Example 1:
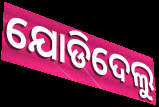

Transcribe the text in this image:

ଯୋଡିଦେଲୁ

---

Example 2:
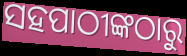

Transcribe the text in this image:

ସହପାଠୀଙ୍କଠାରୁ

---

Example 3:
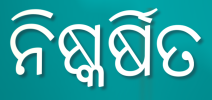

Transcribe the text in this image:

ନିଷ୍କର୍ଷିତ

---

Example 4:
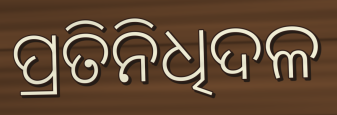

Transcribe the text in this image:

ପ୍ରତିନିଧିଦଳ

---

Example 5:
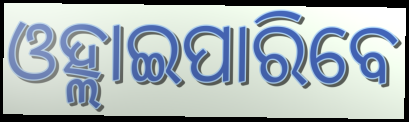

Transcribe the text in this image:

ଓହ୍ଲାଇପାରିବେ